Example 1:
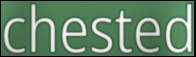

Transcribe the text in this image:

chested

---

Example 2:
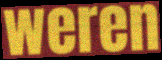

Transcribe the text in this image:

weren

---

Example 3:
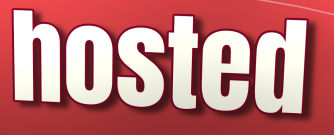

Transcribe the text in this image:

hosted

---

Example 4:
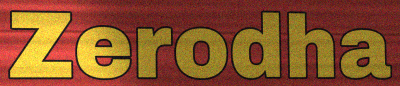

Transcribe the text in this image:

Zerodha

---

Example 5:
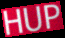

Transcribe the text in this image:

HUP